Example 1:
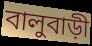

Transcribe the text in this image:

বালুবাড়ী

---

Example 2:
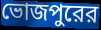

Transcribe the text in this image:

ভোজপুরের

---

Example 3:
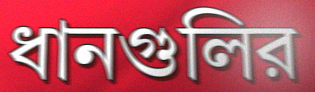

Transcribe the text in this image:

ধানগুলির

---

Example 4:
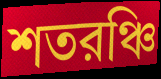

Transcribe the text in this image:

শতরঞ্চি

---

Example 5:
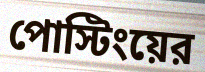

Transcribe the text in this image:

পোস্টিংয়ের